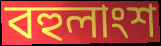
বহুলাংশ